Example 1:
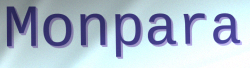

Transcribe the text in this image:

Monpara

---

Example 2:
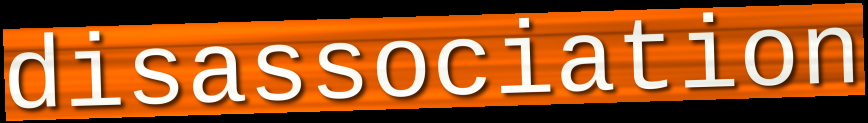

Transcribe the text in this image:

disassociation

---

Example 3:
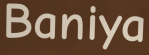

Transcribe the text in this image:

Baniya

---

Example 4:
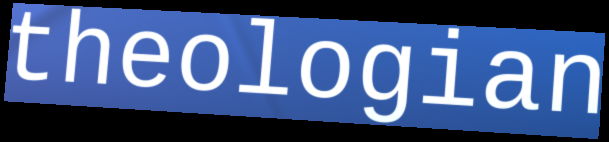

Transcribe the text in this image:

theologian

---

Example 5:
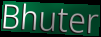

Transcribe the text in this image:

Bhuter